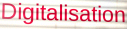
Digitalisation